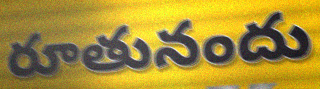
రూతునందు